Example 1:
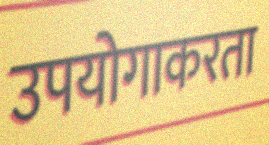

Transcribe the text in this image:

उपयोगाकरता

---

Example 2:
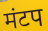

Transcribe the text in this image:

मंटप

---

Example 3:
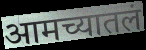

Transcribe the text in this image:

आमच्यातलं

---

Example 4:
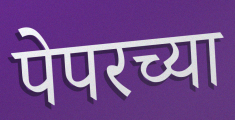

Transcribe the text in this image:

पेपरच्या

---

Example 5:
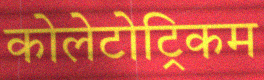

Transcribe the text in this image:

कोलेटोट्रिकम